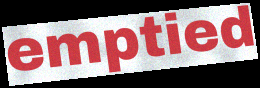
emptied